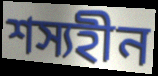
শস্যহীন